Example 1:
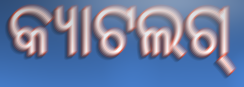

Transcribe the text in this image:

କ୍ୟାଟଲଗ୍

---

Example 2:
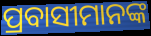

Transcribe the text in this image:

ପ୍ରବାସୀମାନଙ୍କ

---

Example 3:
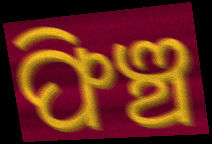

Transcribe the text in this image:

ଫିଞ୍ଚ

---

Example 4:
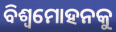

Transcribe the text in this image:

ବିଶ୍ଵମୋହନକୁ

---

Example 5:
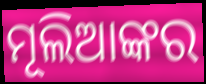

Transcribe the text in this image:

ମୂଲିଆଙ୍କର